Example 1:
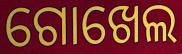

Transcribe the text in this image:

ଗୋଖେଲ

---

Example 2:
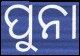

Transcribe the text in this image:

ପୁନା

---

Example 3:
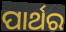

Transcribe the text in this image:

ପାର୍ଥର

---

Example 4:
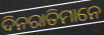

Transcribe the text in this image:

ଦିନରାତିମାନେ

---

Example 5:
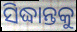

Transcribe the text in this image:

ସିଦ୍ଧାନ୍ତକୁ